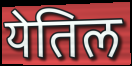
येतिल